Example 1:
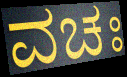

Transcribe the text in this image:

ವಚಃ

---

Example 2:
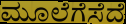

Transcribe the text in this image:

ಮೂಲೆಗೆಸೆದೆ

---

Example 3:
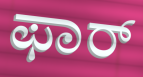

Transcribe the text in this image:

ಫಾರ್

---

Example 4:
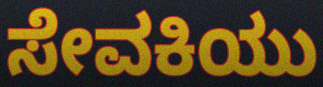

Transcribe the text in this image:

ಸೇವಕಿಯು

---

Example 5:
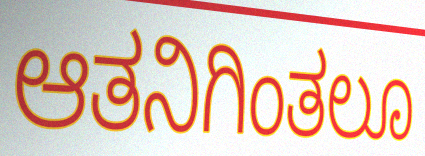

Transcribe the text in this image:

ಆತನಿಗಿಂತಲೂ